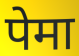
पेमा